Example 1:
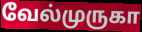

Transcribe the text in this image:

வேல்முருகா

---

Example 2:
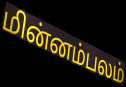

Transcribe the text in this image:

மின்னம்பலம்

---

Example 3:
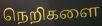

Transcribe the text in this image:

நெறிகளை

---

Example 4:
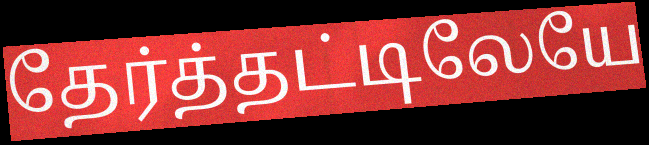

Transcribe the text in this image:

தேர்த்தட்டிலேயே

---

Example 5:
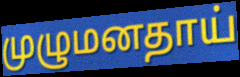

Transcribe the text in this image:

முழுமனதாய்